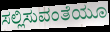
ಸಲ್ಲಿಸುವಂತೆಯೂ